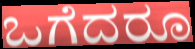
ಒಗೆದರೂ